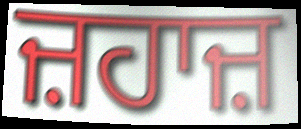
ਜ਼ਹਾਜ਼